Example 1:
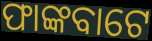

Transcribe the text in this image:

ଫାଙ୍କବାଟେ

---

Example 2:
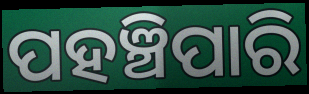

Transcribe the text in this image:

ପହଞ୍ଚିପାରି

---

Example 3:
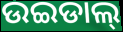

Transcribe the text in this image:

ଉଇଡାଲ୍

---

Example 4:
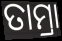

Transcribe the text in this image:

ତାମ୍ରା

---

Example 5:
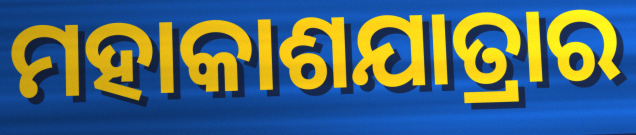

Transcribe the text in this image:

ମହାକାଶଯାତ୍ରାର